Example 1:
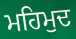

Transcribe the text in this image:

ਮਹਿਮੁਦ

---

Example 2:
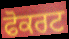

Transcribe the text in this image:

ਫੋਕਰਟ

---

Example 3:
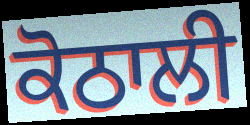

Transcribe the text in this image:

ਕੋਠਾਲੀ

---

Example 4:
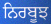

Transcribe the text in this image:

ਨਿਰਬੂਝ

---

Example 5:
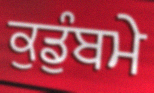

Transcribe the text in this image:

ਕੁਡੁੰਬਮੇ